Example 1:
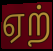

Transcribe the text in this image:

ஏற்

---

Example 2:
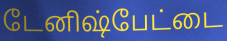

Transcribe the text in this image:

டேனிஷ்பேட்டை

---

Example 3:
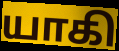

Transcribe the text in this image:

யாகி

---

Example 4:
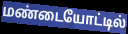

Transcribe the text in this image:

மண்டையோட்டில்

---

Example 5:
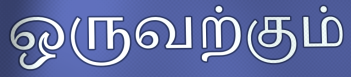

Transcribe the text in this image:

ஒருவற்கும்